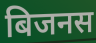
बिजनस